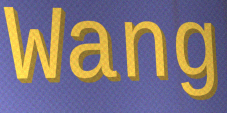
Wang